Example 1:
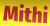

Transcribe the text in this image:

Mithi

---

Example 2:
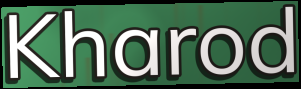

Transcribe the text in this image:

Kharod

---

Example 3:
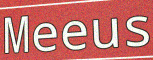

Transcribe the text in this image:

Meeus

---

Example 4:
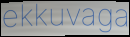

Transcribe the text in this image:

ekkuvaga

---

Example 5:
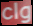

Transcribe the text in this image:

clg